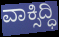
ವಾಕ್ಸಿದ್ಧಿ